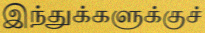
இந்துக்களுக்குச்